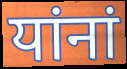
यांनां